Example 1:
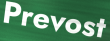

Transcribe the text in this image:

Prevost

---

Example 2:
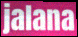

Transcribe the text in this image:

jalana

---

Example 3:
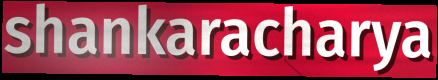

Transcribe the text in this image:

shankaracharya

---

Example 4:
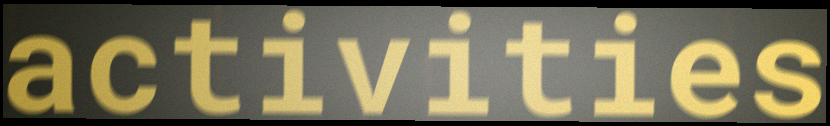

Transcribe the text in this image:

activities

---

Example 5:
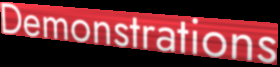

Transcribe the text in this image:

Demonstrations